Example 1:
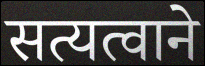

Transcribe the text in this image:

सत्यत्वाने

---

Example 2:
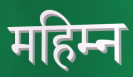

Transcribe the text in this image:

महिम्न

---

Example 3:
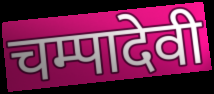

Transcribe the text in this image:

चम्पादेवी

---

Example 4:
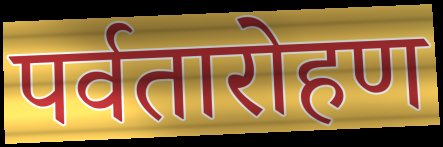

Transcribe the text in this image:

पर्वतारोहण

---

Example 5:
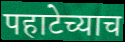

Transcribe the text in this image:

पहाटेच्याच